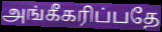
அங்கீகரிப்பதே